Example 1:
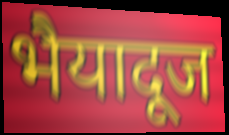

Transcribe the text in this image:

भैयादूज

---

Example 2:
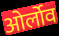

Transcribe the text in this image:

ओर्लोव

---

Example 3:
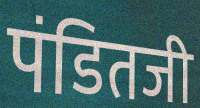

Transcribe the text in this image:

पंडितजी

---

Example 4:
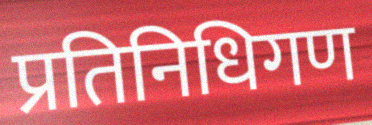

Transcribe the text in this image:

प्रतिनिधिगण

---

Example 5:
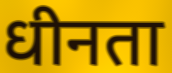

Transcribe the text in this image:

धीनता